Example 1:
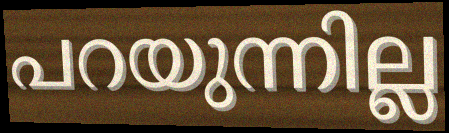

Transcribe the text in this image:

പറയുന്നില്ല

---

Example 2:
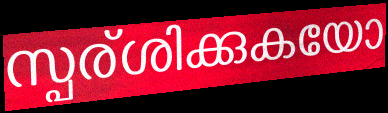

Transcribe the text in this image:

സ്പര്ശിക്കുകയോ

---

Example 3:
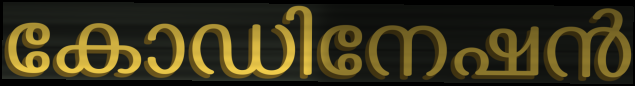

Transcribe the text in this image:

കോഡിനേഷൻ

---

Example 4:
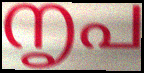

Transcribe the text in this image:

നൃപ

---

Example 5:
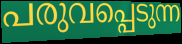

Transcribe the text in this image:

പരുവപ്പെടുന്ന